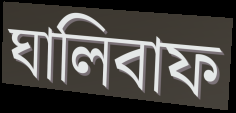
ঘালিবাফ